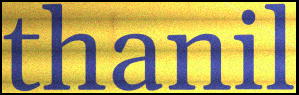
thanil